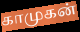
காமுகன்